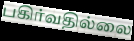
பகிர்வதில்லை